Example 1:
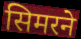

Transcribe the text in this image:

सिमरने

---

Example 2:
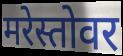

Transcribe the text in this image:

मरेस्तोवर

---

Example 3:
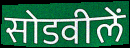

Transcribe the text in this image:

सोडवीलें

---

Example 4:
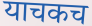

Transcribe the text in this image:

याचकच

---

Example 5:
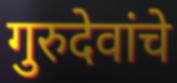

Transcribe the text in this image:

गुरुदेवांचे